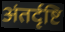
अंतर्दृष्टि